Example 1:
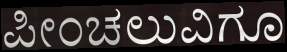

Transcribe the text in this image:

ಪೀಂಚಲುವಿಗೂ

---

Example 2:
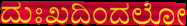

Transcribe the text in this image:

ದುಃಖದಿಂದಲೋ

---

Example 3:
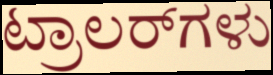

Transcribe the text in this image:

ಟ್ರಾಲರ್‌ಗಳು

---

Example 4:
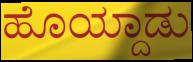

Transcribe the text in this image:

ಹೊಯ್ದಾಡು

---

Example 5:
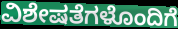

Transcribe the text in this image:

ವಿಶೇಷತೆಗಳೊಂದಿಗೆ